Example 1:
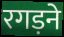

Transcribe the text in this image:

रगड़ने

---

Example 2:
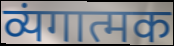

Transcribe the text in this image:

व्यंगात्मक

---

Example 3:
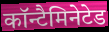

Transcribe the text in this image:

कॉन्टैमिनेटेड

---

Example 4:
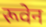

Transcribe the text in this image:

रूवेन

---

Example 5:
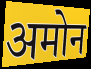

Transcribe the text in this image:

अमोन